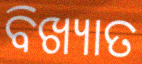
ବିଖ୍ୟାତ